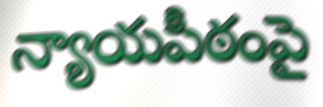
న్యాయపీఠంపై